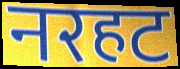
नरहट